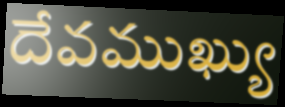
దేవముఖ్యు